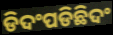
ଡିଦଂପଡିଛିଦଂ